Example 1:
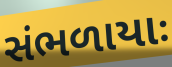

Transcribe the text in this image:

સંભળાયાઃ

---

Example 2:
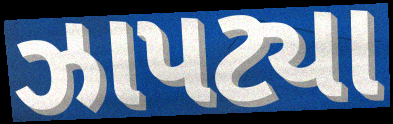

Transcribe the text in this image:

ઝાપટ્યા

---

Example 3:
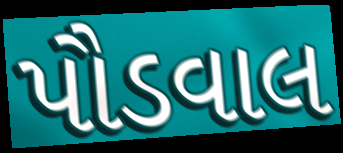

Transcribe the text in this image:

પૌડવાલ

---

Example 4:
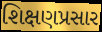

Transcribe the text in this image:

શિક્ષણપ્રસાર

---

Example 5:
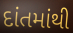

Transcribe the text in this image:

દાંતમાંથી